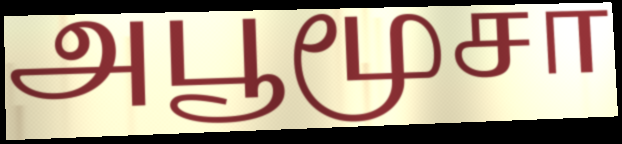
அபூமூசா